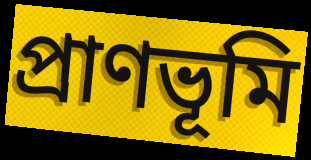
প্রাণভূমি